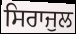
ਸਿਰਾਜੁਲ